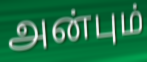
அன்பும்